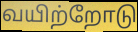
வயிற்றோடு